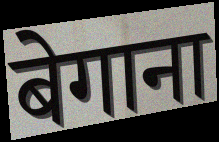
बेगाना